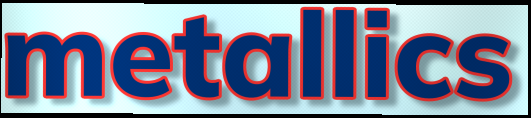
metallics